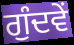
ਗੁੰਦਵੇਂ